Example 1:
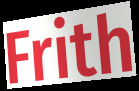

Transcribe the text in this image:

Frith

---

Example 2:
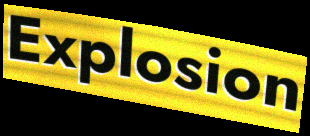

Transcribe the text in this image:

Explosion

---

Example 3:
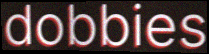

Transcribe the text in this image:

dobbies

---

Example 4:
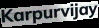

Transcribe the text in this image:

Karpurvijay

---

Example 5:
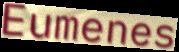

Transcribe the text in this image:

Eumenes